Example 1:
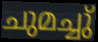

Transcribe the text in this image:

ചുമച്ചു്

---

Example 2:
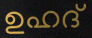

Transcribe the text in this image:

ഉഹദ്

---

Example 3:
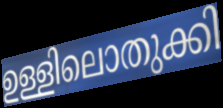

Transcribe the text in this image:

ഉള്ളിലൊതുക്കി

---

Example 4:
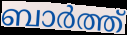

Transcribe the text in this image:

ബാർത്ത്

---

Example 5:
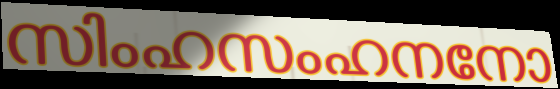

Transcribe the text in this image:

സിംഹസംഹനനോ